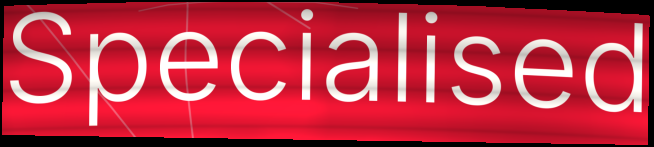
Specialised